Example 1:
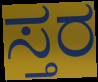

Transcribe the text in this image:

ಸ್ತರ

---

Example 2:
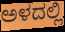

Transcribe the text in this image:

ಅಳದಲ್ಲಿ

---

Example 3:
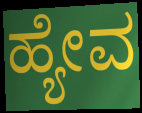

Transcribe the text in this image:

ಹ್ಯೇವ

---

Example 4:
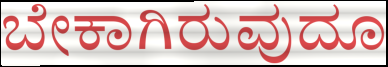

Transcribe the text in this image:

ಬೇಕಾಗಿರುವುದೂ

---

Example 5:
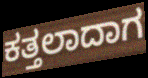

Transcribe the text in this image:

ಕತ್ತಲಾದಾಗ